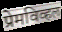
प्रेमविव्हल